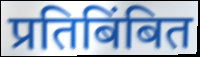
प्रतिबिंबित